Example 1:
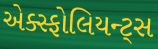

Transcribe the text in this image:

એક્સ્ફોલિયન્ટ્સ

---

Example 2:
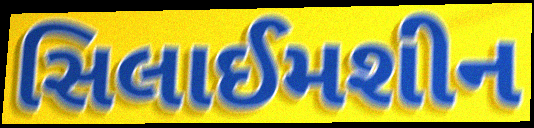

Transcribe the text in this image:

સિલાઈમશીન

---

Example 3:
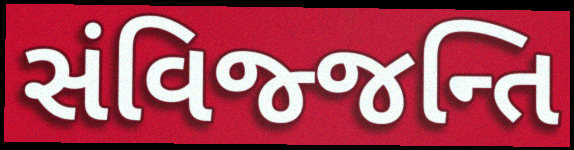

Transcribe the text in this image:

સંવિજ્જન્તિ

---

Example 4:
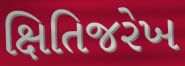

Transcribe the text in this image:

ક્ષિતિજરેખ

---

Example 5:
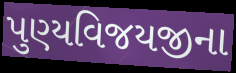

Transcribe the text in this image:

પુણ્યવિજયજીના